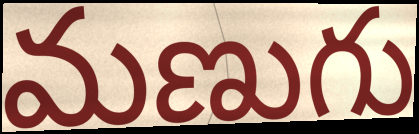
మణుగు